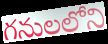
గనులలోని